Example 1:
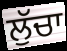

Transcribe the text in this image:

ਲੁੱਚਾ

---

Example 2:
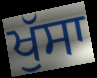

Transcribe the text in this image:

ਖੁੱਸਾ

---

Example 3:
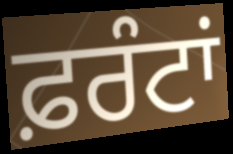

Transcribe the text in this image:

ਫ਼ਰੰਟਾਂ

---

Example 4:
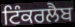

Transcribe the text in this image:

ਟਿੰਕਰਲੈਬ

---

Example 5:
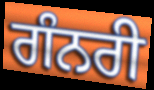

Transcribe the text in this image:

ਗੰਨਰੀ